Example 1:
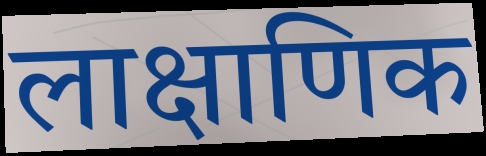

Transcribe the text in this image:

लाक्षाणिक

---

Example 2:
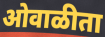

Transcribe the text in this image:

ओवाळीता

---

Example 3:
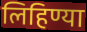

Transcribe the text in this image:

लिहिण्या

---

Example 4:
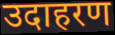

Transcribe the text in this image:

उदाहरण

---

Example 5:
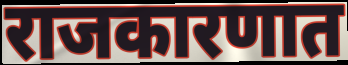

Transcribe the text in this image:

राजकारणात